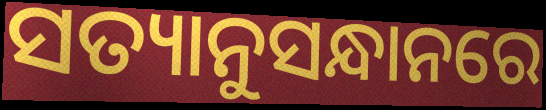
ସତ୍ୟାନୁସନ୍ଧାନରେ